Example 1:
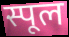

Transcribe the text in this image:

स्पूल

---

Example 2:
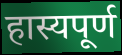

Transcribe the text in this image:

हास्यपूर्ण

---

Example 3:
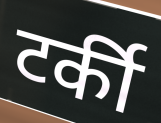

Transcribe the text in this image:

टर्की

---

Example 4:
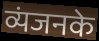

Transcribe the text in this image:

व्यंजनके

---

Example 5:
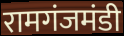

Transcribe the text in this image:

रामगंजमंडी